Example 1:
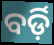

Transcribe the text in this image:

ବର୍ଡ଼ି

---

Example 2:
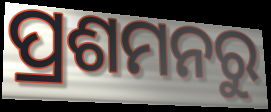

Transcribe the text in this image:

ପ୍ରଶମନରୁ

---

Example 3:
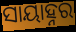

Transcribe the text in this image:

ସାୟାହ୍ନର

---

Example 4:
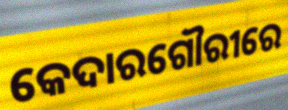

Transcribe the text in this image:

କେଦାରଗୌରୀରେ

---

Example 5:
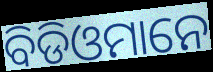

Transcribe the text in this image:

ବିଡିଓମାନେ